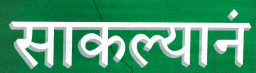
साकल्यानं